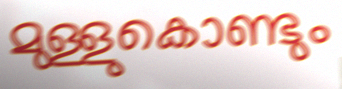
മുള്ളുകൊണ്ടും